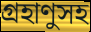
গ্রহাণুসহ